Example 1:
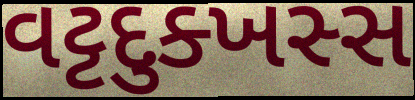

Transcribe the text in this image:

વટ્ટદુક્ખસ્સ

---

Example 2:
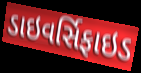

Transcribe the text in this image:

ડાઇવર્સિફાઇડ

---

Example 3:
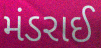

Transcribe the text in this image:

મંડરાઈ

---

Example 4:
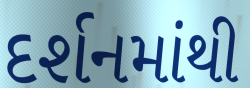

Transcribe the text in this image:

દર્શનમાંથી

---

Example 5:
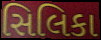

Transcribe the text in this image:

સિલિકા